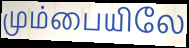
மும்பையிலே